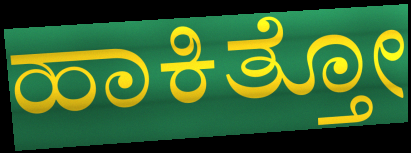
ಹಾಕಿತ್ತೋ